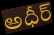
అధీర్